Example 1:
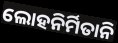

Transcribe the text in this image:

ଲୋହନିର୍ମିତାନି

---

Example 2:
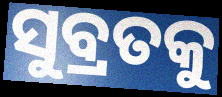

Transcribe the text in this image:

ସୁବ୍ରତକୁ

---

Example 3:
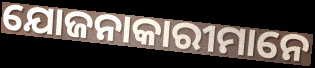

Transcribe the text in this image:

ଯୋଜନାକାରୀମାନେ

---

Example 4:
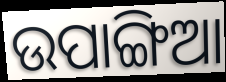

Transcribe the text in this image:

ଉପାଙ୍ଗିଆ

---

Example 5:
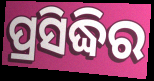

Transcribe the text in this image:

ପ୍ରସିଦ୍ଧିର